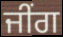
ਜੀਂਗ